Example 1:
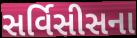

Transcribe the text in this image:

સર્વિસીસના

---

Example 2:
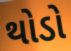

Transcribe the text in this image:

થોડો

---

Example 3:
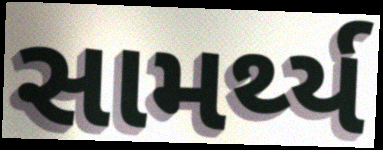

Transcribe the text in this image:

સામર્થ્ય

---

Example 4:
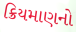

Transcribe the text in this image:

ક્રિયમાણનો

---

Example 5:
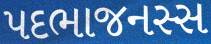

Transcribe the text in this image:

પદભાજનસ્સ